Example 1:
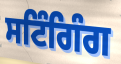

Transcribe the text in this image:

ਸਟਿੰਗਿੰਗ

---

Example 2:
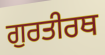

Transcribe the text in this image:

ਗੁਰਤੀਰਥ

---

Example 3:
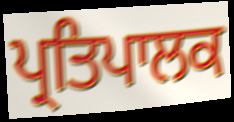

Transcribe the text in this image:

ਪ੍ਰਤਿਪਾਲਕ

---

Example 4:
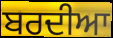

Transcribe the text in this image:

ਬਰਦੀਆ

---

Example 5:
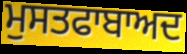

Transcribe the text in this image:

ਮੁਸਤਫਾਬਾਅਦ